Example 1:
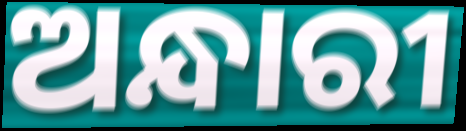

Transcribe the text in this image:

ଅନ୍ଧାରୀ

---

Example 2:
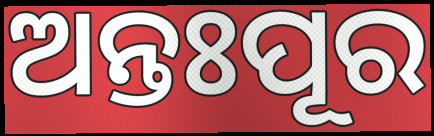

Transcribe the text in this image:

ଅନ୍ତଃପୂର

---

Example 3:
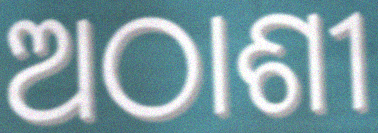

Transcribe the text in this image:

ଅଠାଶୀ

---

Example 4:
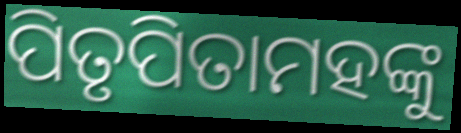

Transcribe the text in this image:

ପିତୃପିତାମହଙ୍କୁ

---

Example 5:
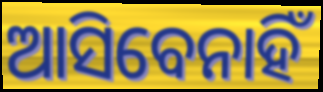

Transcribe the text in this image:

ଆସିବେନାହିଁ